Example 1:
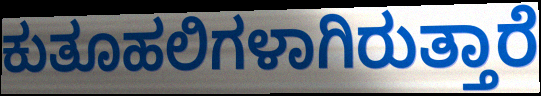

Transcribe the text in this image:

ಕುತೂಹಲಿಗಳಾಗಿರುತ್ತಾರೆ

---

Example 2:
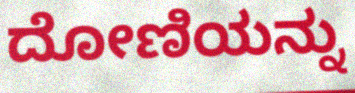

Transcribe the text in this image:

ದೋಣಿಯನ್ನು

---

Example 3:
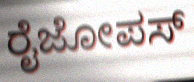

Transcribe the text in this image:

ರೈಜೋಪಸ್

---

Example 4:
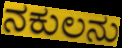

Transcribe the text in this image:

ನಕುಲನು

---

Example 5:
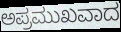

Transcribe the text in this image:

ಅಪ್ರಮುಖವಾದ